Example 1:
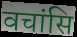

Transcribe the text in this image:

वचांसि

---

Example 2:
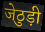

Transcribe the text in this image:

जेठुड़ी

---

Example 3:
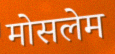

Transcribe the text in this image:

मोसलेम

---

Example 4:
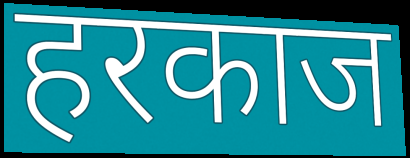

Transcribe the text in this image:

हरकाज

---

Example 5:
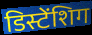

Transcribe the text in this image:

डिस्टेंशिग